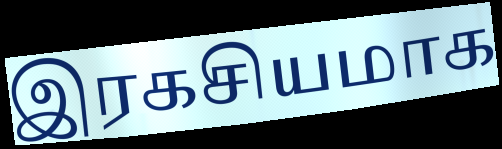
இரகசியமாக